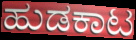
ಹುಡಕಾಟ